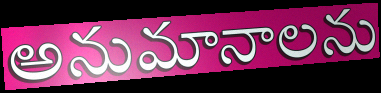
అనుమానాలను